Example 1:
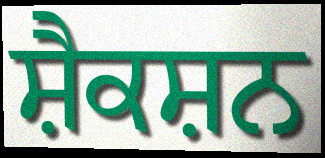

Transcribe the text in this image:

ਸ਼ੈਕਸ਼ਨ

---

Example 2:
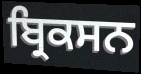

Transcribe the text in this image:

ਬ੍ਰਿਕਸਨ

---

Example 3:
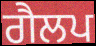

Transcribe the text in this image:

ਗੈਲਪ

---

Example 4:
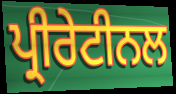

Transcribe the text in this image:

ਪ੍ਰੀਰੇਟੀਨਲ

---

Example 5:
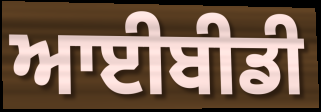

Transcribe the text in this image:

ਆਈਬੀਡੀ